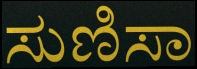
ಸುಣಿಸಾ